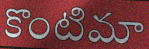
కొంటిమా